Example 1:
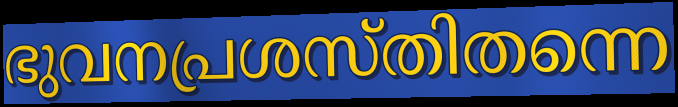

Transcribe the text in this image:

ഭുവനപ്രശസ്തിതന്നെ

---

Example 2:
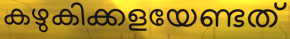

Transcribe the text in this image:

കഴുകിക്കളയേണ്ടത്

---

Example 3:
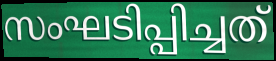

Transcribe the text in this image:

സംഘടിപ്പിച്ചത്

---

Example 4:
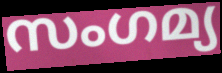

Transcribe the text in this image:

സംഗമ്യ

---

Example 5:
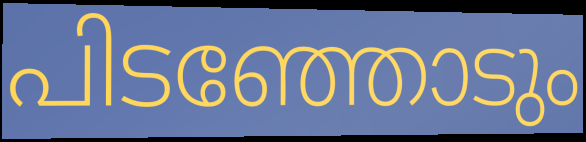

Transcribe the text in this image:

പിടഞ്ഞോടും